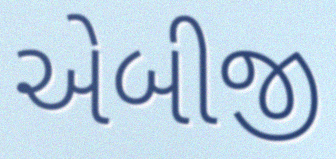
એબીજી